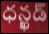
ధన్ఖడ్